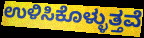
ಉಳಿಸಿಕೊಳ್ಳುತ್ತವೆ